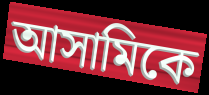
আসামিকে